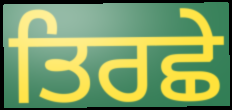
ਤਿਰਛੇ